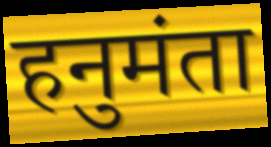
हनुमंता